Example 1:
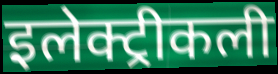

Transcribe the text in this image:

इलेक्ट्रीकली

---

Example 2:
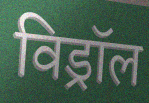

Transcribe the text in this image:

विड्रॉल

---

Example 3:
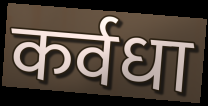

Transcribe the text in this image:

कर्वधा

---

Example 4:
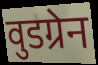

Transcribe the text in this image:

वुडग्रेन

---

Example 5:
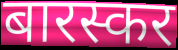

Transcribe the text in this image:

बारस्कर